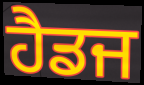
ਹੈਡਜ